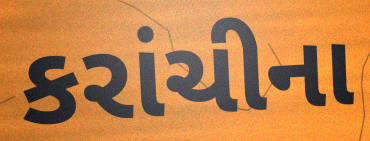
કરાંચીના